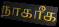
நாகரீக